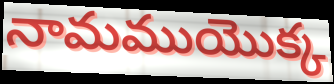
నామముయొక్క